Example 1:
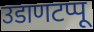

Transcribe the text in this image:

उडाणटप्पू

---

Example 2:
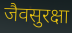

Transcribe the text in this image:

जैवसुरक्षा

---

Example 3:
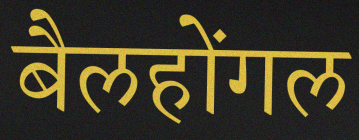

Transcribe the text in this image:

बैलहोंगल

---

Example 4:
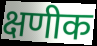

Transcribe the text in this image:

क्षणीक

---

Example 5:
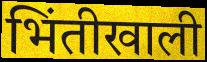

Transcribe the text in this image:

भिंतीखाली